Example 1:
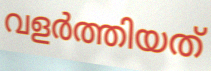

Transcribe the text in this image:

വളർത്തിയത്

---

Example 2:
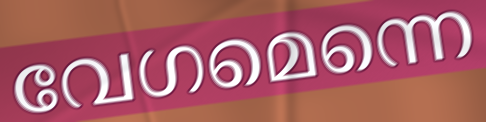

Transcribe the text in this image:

വേഗമെന്നെ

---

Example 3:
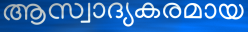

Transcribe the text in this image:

ആസ്വാദ്യകരമായ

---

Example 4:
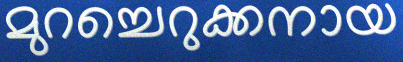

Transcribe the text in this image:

മുറച്ചെറുക്കനായ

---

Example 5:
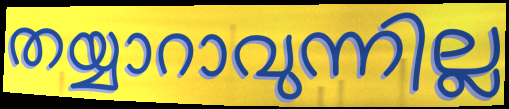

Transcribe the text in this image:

തയ്യാറാവുന്നില്ല